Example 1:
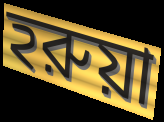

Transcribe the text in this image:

হরুয়া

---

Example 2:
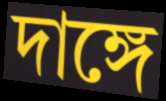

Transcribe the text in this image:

দাঙ্গে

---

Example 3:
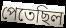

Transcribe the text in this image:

পেতেছিল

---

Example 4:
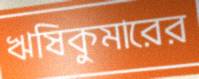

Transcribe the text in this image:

ঋষিকুমারের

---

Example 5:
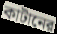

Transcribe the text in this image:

কাটানের